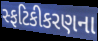
સ્ફટિકીકરણના